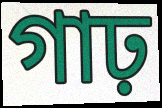
গাঢ়